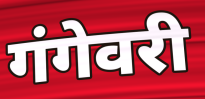
गंगेवरी